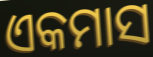
ଏକମାସ